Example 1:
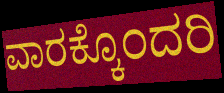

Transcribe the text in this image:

ವಾರಕ್ಕೊಂದರಿ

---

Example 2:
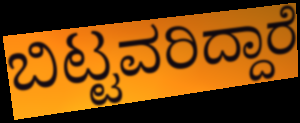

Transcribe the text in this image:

ಬಿಟ್ಟವರಿದ್ದಾರೆ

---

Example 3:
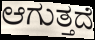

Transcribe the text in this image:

ಆಗುತ್ತದೆ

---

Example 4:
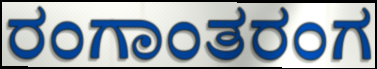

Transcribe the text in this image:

ರಂಗಾಂತರಂಗ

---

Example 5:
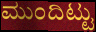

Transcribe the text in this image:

ಮುಂದಿಟ್ಟು